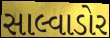
સાલ્વાડોર